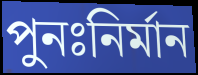
পুনঃনির্মান